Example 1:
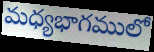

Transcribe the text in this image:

మధ్యభాగములో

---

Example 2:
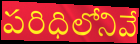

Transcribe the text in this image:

పరిధిలోనివే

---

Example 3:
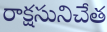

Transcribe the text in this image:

రాక్షసునిచేత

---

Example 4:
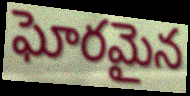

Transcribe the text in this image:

ఘోరమైన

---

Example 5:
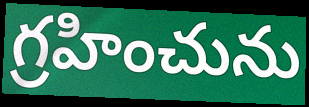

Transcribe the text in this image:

గ్రహించును